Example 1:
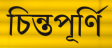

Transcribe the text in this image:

চিন্তপূৰ্ণি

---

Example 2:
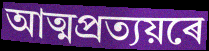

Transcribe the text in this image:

আত্মপ্ৰত্যয়ৰে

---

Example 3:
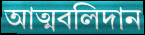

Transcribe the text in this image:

আত্মবলিদান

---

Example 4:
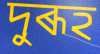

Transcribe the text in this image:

দুৰূহ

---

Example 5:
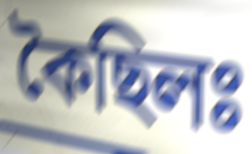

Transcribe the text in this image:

কৈছিলঃ